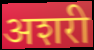
अशरी